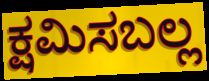
ಕ್ಷಮಿಸಬಲ್ಲ